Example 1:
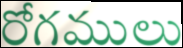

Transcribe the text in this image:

రోగములు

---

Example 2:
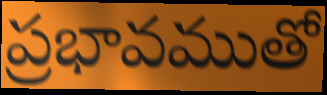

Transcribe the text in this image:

ప్రభావముతో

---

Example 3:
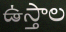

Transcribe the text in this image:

ఉస్తాల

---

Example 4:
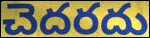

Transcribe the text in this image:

చెదరదు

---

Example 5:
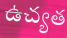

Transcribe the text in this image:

ఉచ్యత